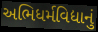
અભિધર્મવિદ્યાનું